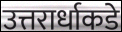
उत्तरार्धाकडे